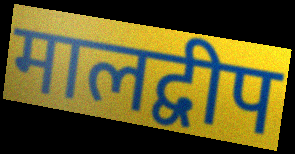
मालद्वीप